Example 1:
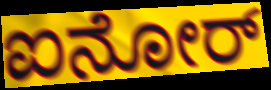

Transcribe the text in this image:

ಐನೋರ್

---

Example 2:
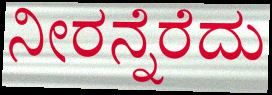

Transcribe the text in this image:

ನೀರನ್ನೆರೆದು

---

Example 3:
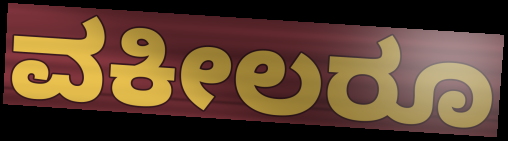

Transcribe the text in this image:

ವಕೀಲರೂ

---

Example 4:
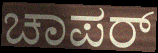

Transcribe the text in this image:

ಚಾಪರ್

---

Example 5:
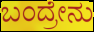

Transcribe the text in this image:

ಬಂದ್ರೇನು